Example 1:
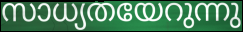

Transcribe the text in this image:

സാധ്യതയേറുന്നു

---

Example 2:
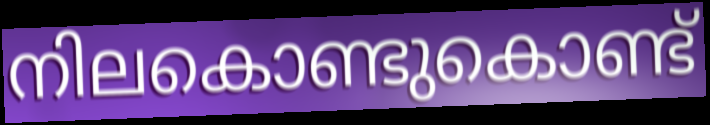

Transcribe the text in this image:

നിലകൊണ്ടുകൊണ്ട്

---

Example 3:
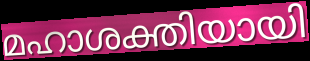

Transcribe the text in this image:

മഹാശക്തിയായി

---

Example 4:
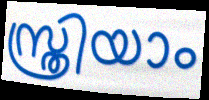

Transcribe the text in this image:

സ്ത്രിയാം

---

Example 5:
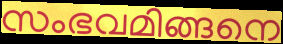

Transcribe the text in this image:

സംഭവമിങ്ങനെ